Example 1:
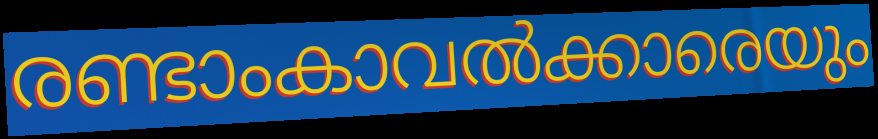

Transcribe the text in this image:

രണ്ടാംകാവൽക്കാരെയും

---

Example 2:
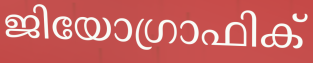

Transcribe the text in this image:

ജിയോഗ്രാഫിക്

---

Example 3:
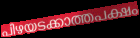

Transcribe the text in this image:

പിഴയടക്കാത്തപക്ഷം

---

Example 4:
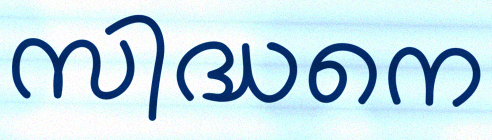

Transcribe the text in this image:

സിദ്ധനെ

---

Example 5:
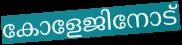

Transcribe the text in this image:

കോളേജിനോട്